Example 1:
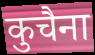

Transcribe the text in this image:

कुचैना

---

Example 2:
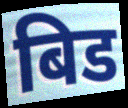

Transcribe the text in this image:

बिड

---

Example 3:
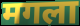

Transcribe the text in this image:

मगला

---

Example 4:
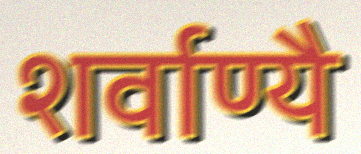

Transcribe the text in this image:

शर्वाण्यै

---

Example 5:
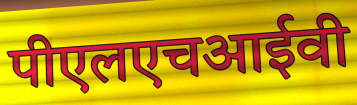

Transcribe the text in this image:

पीएलएचआईवी